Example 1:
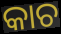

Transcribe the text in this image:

କାଚ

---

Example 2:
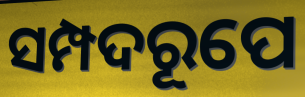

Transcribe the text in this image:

ସମ୍ପଦରୂପେ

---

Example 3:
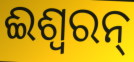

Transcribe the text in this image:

ଈଶ୍ୱରନ୍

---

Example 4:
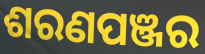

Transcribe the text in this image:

ଶରଣପଞ୍ଜର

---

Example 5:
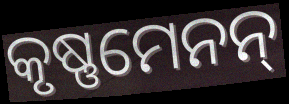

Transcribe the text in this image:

କୃଷ୍ଣମେନନ୍